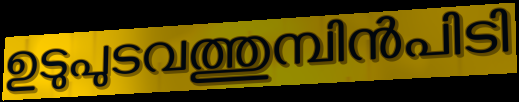
ഉടുപുടവത്തുമ്പിൻപിടി